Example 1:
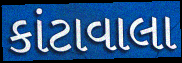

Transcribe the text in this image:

કાંટાવાલા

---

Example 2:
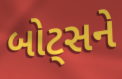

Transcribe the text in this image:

બોટ્સને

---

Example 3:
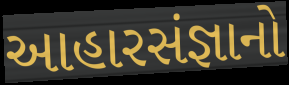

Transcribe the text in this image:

આહારસંજ્ઞાનો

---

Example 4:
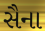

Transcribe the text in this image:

સૈના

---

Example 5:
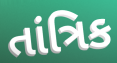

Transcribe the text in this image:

તાંત્રિક